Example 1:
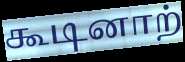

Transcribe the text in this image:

கூடினாற்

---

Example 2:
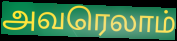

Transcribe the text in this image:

அவரெலாம்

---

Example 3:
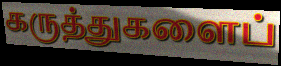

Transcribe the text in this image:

கருத்துகளைப்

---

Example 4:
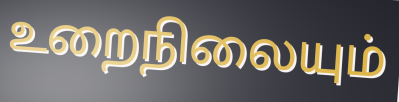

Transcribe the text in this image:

உறைநிலையும்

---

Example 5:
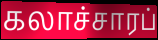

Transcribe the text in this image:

கலாச்சாரப்